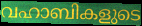
വഹാബികളുടെ